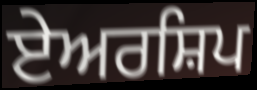
ਏਅਰਸ਼ਿਪ